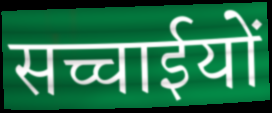
सच्चाईयों